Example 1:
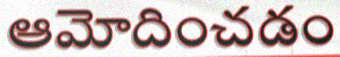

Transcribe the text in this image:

ఆమోదించడం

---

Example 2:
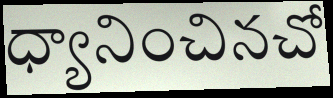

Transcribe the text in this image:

ధ్యానించినచో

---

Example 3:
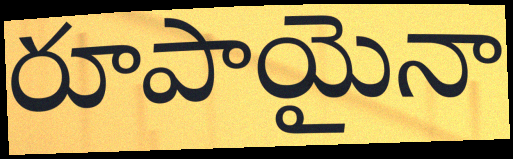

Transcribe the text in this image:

రూపాయైనా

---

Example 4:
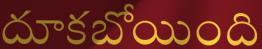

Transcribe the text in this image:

దూకబోయింది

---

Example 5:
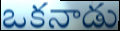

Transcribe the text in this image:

ఒకనాడు